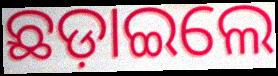
ଛଡ଼ାଇଲେ